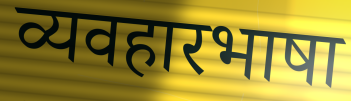
व्यवहारभाषा